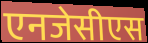
एनजेसीएस